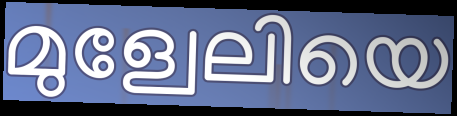
മുള്വേലിയെ